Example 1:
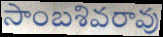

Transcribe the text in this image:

సాంబశివరావు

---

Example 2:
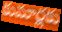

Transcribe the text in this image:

కుమార్లకు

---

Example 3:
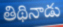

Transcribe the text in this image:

తిథినాడు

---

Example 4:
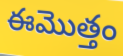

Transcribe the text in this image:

ఈమొత్తం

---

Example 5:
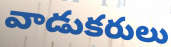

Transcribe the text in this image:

వాడుకరులు